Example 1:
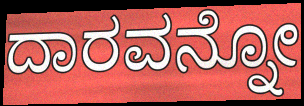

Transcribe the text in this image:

ದಾರವನ್ನೋ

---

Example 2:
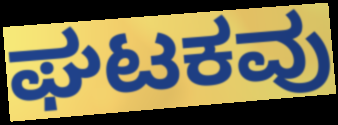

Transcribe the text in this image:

ಘಟಕವು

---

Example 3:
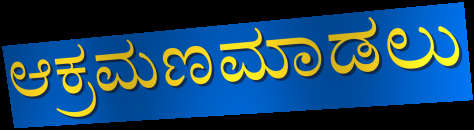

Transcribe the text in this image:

ಆಕ್ರಮಣಮಾಡಲು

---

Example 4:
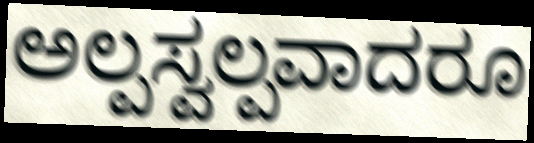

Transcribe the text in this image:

ಅಲ್ಪಸ್ವಲ್ಪವಾದರೂ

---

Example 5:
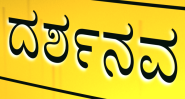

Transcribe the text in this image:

ದರ್ಶನವ